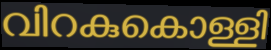
വിറകുകൊള്ളി